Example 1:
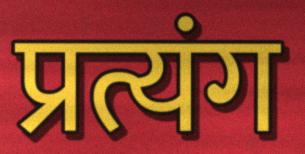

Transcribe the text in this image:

प्रत्यंग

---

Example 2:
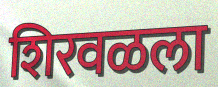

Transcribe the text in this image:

शिरवळला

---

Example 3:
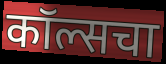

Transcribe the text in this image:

कॉल्सचा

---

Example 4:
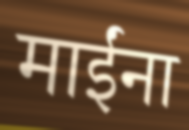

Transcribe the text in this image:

माईंना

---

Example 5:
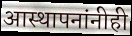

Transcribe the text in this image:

आस्थापनांनीही